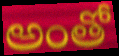
అంతో